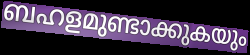
ബഹളമുണ്ടാക്കുകയും